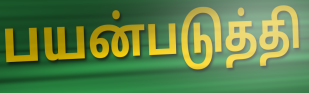
பயன்படுத்தி